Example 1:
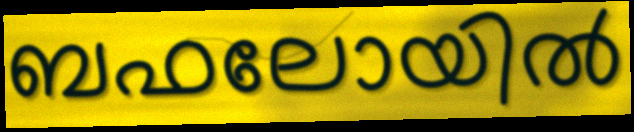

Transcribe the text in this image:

ബഫലോയിൽ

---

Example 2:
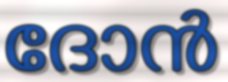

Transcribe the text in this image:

ദോൻ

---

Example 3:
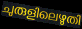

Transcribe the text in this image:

ചുരുളിലെഴുതി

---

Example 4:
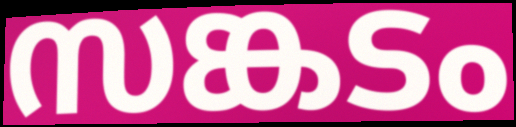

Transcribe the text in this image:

സങ്കടം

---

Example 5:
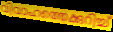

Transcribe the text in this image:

വിവാഹത്തെക്കുറിച്ച്